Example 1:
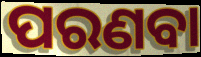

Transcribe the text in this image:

ପରଣବା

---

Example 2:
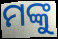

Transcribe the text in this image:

ମଙ୍କୁ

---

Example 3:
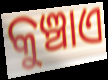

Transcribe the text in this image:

କୁଞ୍ଚାଏ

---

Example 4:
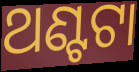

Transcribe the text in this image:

ଥଣ୍ଟଟା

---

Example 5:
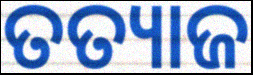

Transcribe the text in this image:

ତତ୍ୟାଜ